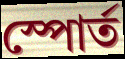
স্পোর্ত